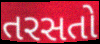
તરસતો